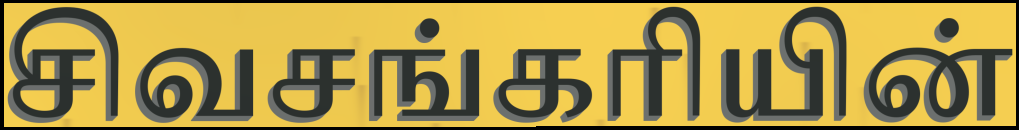
சிவசங்கரியின்